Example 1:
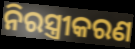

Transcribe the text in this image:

ନିରସ୍ତ୍ରୀକରଣ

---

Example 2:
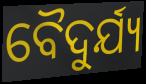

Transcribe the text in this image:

ବୈଦୁର୍ଯ୍ୟ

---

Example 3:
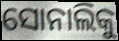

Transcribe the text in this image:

ସୋନାଲିକୁ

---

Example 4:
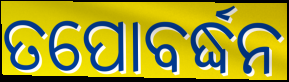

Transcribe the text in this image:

ତପୋବର୍ଦ୍ଧନ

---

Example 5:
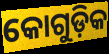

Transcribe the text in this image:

କୋଗୁଡ଼ିକ